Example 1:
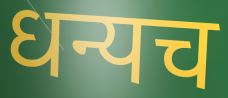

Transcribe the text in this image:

धन्यच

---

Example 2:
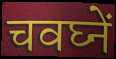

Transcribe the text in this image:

चवघ्नें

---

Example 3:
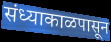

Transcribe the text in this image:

संध्याकाळपासून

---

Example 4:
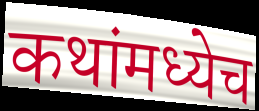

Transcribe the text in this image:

कथांमध्येच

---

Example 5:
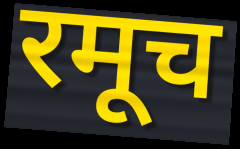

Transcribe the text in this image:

रमूच